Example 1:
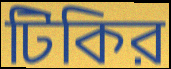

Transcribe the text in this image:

টিকির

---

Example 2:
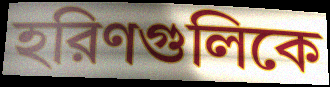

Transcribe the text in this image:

হরিণগুলিকে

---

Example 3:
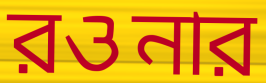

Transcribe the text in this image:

রওনার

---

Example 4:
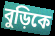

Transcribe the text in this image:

বুড়িকে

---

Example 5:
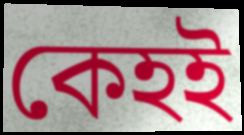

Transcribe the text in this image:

কেহই